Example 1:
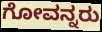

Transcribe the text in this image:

ಗೋವನ್ನರು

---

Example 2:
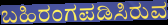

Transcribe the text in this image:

ಬಹಿರಂಗಪಡಿಸಿರುವ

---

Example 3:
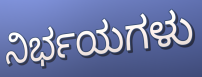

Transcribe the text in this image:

ನಿರ್ಭಯಗಳು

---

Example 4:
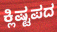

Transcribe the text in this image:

ಕ್ಲಿಷ್ಟಪದ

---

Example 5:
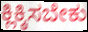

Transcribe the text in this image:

ಕ್ಲಿಕ್ಕಿಸಬೇಕು